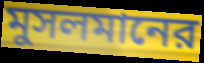
মুসলমানের